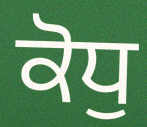
ਕੋਧੁ